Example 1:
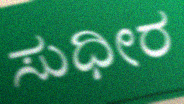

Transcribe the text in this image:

ಸುಧೀರ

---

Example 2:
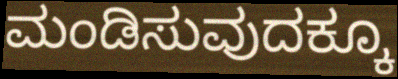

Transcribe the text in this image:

ಮಂಡಿಸುವುದಕ್ಕೂ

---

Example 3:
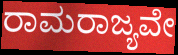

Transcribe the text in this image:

ರಾಮರಾಜ್ಯವೇ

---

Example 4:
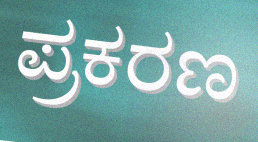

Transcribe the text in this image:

ಪ್ರಕರಣ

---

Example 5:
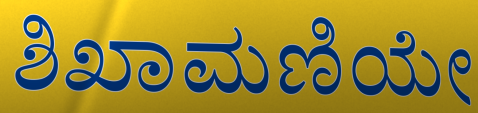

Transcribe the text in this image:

ಶಿಖಾಮಣಿಯೇ